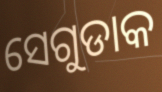
ସେଗୁଡାକ